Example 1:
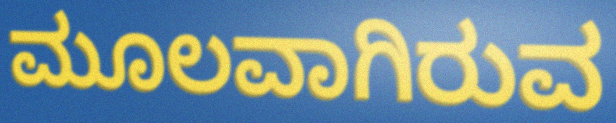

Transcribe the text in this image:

ಮೂಲವಾಗಿರುವ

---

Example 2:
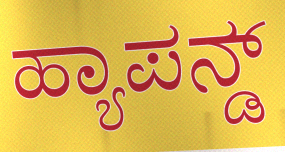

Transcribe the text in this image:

ಹ್ಯಾಪನ್ಡ್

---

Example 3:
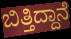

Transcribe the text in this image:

ಬಿತ್ತಿದ್ದಾನೆ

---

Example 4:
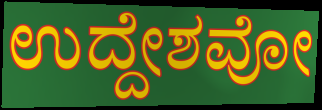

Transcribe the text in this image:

ಉದ್ದೇಶವೋ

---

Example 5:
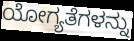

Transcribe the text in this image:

ಯೋಗ್ಯತೆಗಳನ್ನು